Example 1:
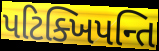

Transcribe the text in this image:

પટિક્ખિપન્તિ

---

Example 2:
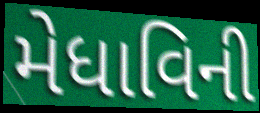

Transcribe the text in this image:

મેધાવિની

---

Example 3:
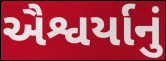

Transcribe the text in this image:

ઐશ્વર્યાનું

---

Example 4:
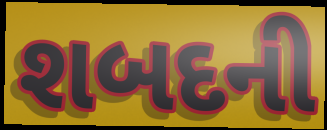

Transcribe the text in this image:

શબદની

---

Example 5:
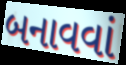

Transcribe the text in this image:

બનાવવાં